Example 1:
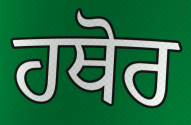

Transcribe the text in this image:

ਹਥੋਰ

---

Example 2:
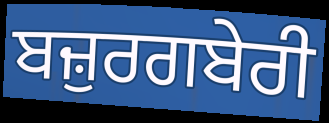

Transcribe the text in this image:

ਬਜ਼ੁਰਗਬੇਰੀ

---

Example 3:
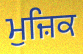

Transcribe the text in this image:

ਮੁਜ਼ਿਕ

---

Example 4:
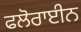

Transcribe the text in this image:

ਫਲੋਰਾਈਨ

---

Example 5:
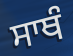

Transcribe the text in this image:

ਸਾਥੰ